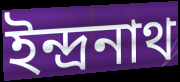
ইন্দ্ৰনাথ